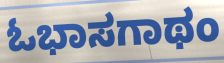
ಓಭಾಸಗಾಥಂ